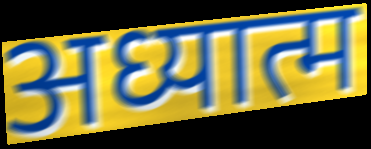
अध्यात्म